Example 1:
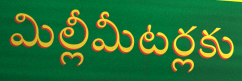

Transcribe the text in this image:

మిల్లీమీటర్లకు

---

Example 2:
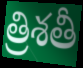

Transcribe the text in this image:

త్రిశతీ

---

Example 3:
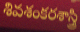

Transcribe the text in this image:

శివశంకరశాస్త్రి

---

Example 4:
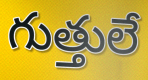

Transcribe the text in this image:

గుత్తులే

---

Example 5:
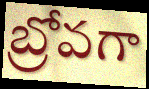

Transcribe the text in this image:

బ్రోవగా